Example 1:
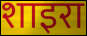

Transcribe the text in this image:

शाइरा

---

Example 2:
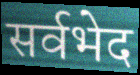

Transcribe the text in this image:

सर्वभेद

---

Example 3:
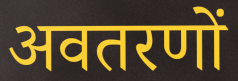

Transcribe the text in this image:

अवतरणों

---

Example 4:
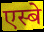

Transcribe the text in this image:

एस्बे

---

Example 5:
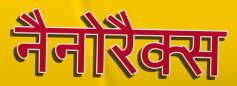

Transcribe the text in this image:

नैनोरैक्स